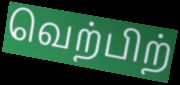
வெற்பிற்